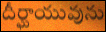
దీర్ఘాయువును